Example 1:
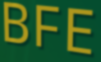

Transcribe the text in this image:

BFE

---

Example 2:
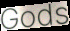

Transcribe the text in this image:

Gods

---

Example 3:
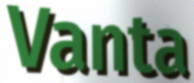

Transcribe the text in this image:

Vanta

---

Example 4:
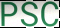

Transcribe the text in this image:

PSC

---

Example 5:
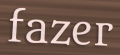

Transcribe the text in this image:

fazer